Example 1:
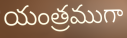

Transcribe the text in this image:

యంత్రముగా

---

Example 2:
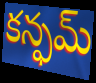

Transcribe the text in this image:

కన్ఫమ్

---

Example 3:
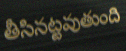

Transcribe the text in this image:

తీసినట్టవుతుంది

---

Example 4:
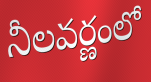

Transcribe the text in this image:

నీలవర్ణంలో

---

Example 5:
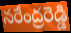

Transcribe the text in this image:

నరేంద్రరెడ్డి